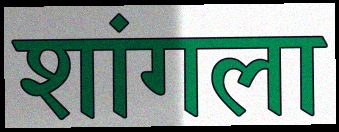
शांगला